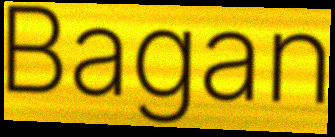
Bagan